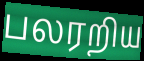
பலரறிய